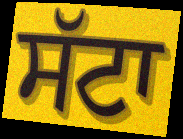
ਸੱਟਾ